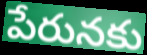
పేరునకు